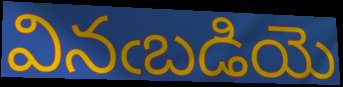
వినఁబడియె